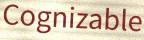
Cognizable